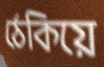
ঠেকিয়ে